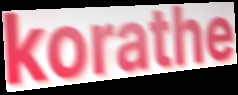
korathe